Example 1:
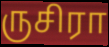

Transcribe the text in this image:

ருசிரா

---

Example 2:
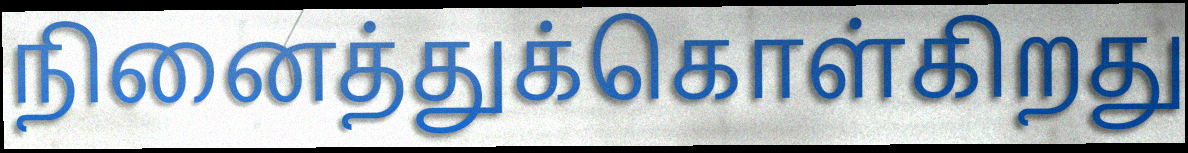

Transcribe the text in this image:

நினைத்துக்கொள்கிறது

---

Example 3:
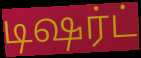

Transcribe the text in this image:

டிஷர்ட்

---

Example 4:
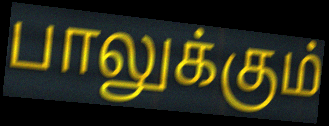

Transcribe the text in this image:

பாலுக்கும்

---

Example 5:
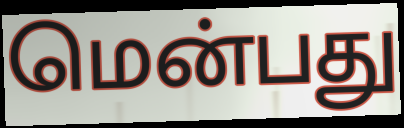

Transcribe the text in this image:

மென்பது